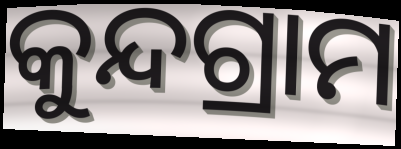
କୁନ୍ଦଗ୍ରାମ